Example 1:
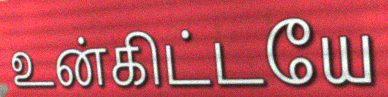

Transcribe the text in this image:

உன்கிட்டயே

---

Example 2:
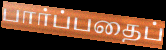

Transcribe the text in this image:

பார்ப்பதைப்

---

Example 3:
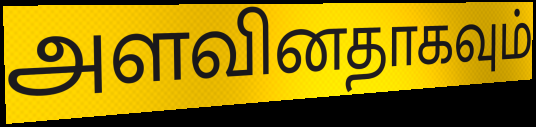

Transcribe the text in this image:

அளவினதாகவும்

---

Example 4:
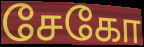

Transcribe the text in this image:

சேகோ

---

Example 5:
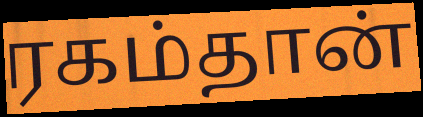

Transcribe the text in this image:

ரகம்தான்